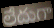
లేదుగా